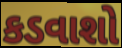
કડવાશો